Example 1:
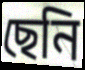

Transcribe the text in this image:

ছেনি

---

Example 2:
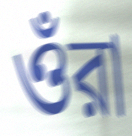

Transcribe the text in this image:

ওঁরা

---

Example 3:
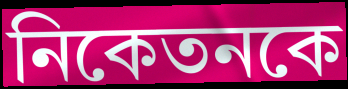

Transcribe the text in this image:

নিকেতনকে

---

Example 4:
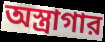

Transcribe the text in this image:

অস্ত্রাগার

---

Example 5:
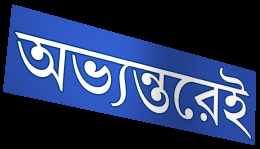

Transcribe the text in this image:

অভ্যন্তরেই